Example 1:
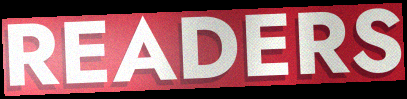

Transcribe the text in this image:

READERS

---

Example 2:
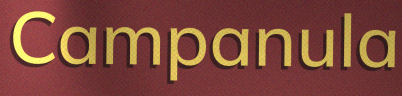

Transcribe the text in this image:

Campanula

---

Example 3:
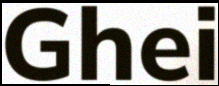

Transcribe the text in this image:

Ghei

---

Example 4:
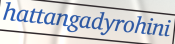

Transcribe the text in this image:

hattangadyrohini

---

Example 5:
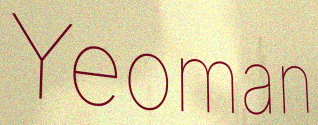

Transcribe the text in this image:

Yeoman